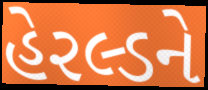
હેરલ્ડને